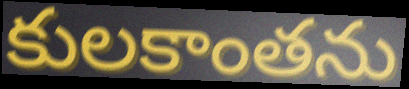
కులకాంతను